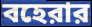
বহেরার